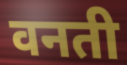
वनती